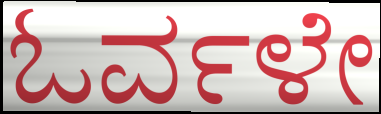
ಓರ್ವಳೇ